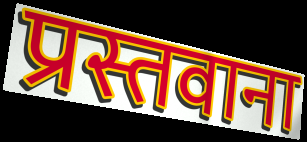
प्रस्तवाना